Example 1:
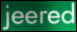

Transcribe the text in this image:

jeered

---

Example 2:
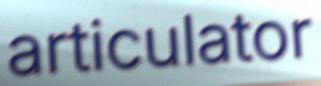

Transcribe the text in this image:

articulator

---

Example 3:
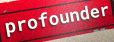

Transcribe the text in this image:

profounder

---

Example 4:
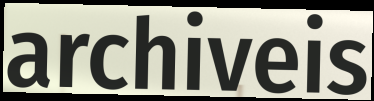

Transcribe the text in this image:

archiveis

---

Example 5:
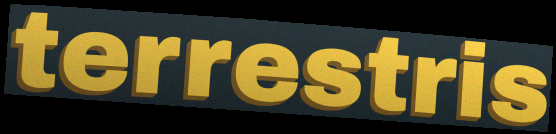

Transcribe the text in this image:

terrestris